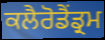
ਕਲੈਰੋਡੈਂਡ੍ਰਮ